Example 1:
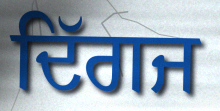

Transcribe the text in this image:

ਦਿੱਗਜ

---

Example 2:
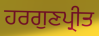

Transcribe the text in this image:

ਹਰਗੁਣਪ੍ਰੀਤ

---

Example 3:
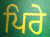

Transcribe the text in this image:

ਪਿਰੇ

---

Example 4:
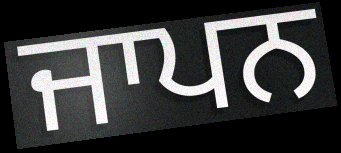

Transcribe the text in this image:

ਜਾਪਨ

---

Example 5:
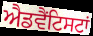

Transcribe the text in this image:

ਐਡਵੈਂਟਿਸਟਾਂ